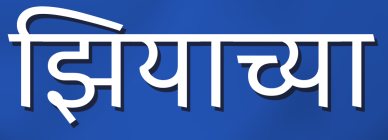
झियाच्या